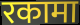
रकामा